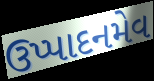
ઉપ્પાદનમેવ